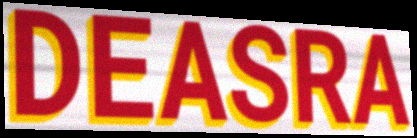
DEASRA